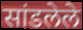
सांडलेले